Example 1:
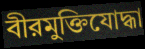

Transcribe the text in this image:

বীরমুক্তিযোদ্ধা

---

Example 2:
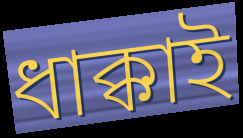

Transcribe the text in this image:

ধাক্কাই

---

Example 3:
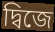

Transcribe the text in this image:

দ্বিজে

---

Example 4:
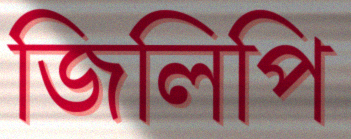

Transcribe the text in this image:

জিলিপি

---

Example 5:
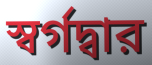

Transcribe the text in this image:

স্বর্গদ্বার